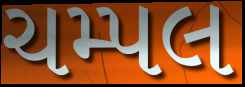
ચમ્પલ